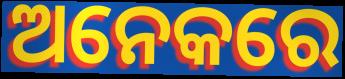
ଅନେକରେ